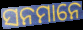
ସନମାନେ